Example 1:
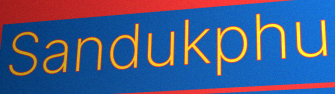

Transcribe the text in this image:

Sandukphu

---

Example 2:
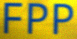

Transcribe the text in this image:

FPP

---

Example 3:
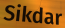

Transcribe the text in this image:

Sikdar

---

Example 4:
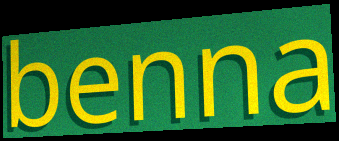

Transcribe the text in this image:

benna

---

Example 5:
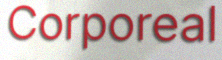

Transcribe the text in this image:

Corporeal